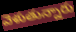
వెళుతున్నారు